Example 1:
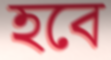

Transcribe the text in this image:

হবে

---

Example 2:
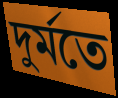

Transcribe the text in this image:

দুর্মতে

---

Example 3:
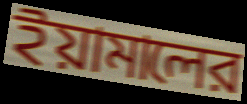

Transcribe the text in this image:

ইয়ামালের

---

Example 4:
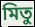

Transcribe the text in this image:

মিতু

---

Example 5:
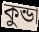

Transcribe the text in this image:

কুন্ডা